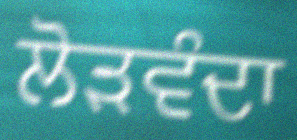
ਲੋੜਵੰਦਾ